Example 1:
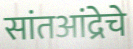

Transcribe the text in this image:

सांतआंद्रेचे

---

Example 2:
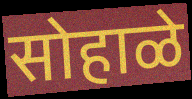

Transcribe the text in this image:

सोहाळे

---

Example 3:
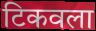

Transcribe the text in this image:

टिकवला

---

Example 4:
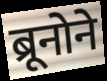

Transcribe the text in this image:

ब्रूनोने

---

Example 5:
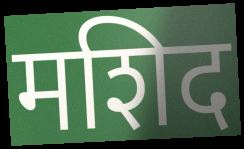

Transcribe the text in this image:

मशिद